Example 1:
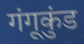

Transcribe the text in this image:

गंगूकुंड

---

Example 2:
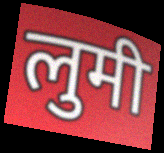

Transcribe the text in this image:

लुमी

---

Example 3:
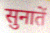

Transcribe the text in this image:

सुनातें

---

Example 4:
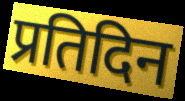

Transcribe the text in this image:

प्रतिदिन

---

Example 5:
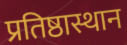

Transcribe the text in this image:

प्रतिष्ठास्थान